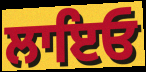
ਲਾਇਓ